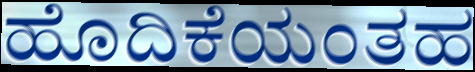
ಹೊದಿಕೆಯಂತಹ